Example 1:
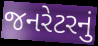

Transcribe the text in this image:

જનરેટરનું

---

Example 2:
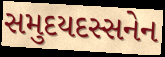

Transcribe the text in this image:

સમુદયદસ્સનેન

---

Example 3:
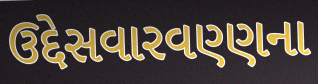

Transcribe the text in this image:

ઉદ્દેસવારવણ્ણના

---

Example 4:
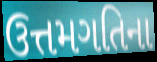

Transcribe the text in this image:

ઉત્તમગતિના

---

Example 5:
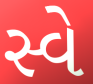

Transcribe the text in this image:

સ્વે